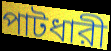
পাটধারী